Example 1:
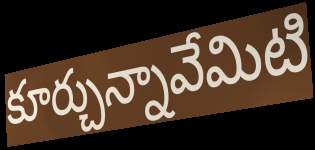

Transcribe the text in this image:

కూర్చున్నావేమిటి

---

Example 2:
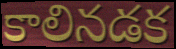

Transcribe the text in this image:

కాలినడక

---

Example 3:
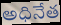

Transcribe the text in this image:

అధినేత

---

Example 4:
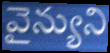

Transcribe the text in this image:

వైన్యుని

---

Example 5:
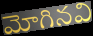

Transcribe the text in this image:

మోగినవి